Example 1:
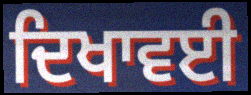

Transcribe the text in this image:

ਦਿਖਾਵਈ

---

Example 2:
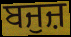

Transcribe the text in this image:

ਬਜੁਜ਼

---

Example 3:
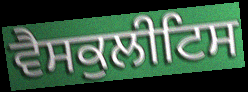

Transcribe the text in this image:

ਵੈਸਕੁਲੀਟਿਸ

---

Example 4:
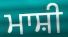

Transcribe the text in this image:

ਮਾਸ਼ੀ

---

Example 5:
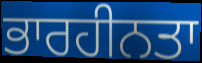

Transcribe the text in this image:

ਭਾਰਹੀਨਤਾ